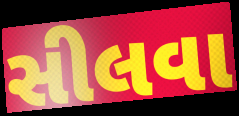
સીલવા